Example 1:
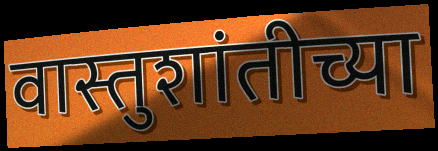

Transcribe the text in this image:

वास्तुशांतीच्या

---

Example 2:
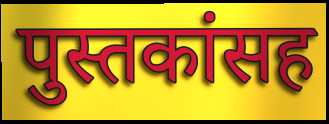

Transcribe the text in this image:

पुस्तकांसह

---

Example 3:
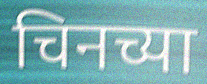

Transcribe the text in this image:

चिनच्या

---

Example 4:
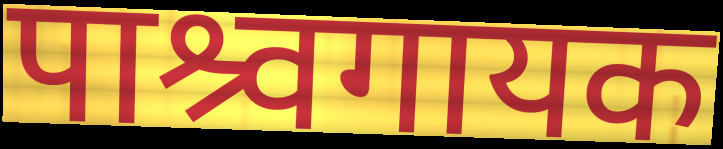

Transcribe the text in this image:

पाश्र्वगायक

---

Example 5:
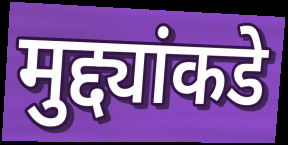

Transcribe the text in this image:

मुद्द्यांकडे